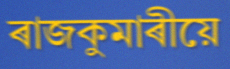
ৰাজকুমাৰীয়ে